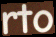
rto